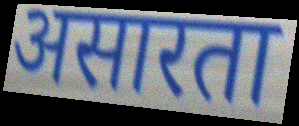
असारता